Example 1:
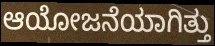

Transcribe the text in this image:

ಆಯೋಜನೆಯಾಗಿತ್ತು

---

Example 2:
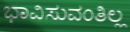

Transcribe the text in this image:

ಭಾವಿಸುವಂತಿಲ್ಲ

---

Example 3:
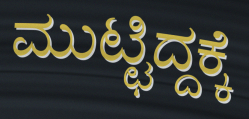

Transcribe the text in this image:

ಮುಟ್ಟಿದ್ದಕ್ಕೆ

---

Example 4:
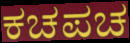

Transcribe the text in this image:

ಕಚಪಚ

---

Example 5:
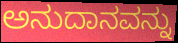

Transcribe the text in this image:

ಅನುದಾನವನ್ನು